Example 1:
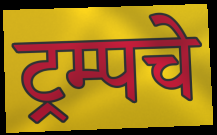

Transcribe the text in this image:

ट्रम्पचे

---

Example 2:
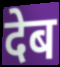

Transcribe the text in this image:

देब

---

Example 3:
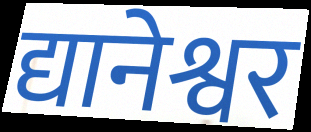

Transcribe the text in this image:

द्यानेश्वर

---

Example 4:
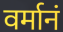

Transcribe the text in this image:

वर्मानं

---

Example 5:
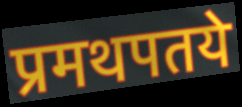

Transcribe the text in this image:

प्रमथपतये